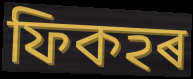
ফিকহৰ